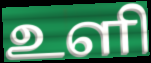
உளி